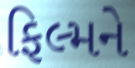
ફિલ્મને